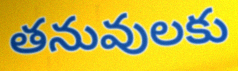
తనువులకు